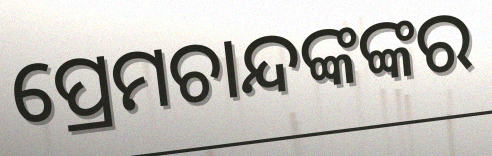
ପ୍ରେମଚାନ୍ଦଙ୍କଙ୍କର